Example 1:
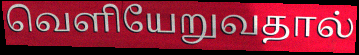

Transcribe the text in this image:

வெளியேறுவதால்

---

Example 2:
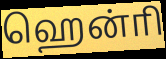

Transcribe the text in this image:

ஹென்ரி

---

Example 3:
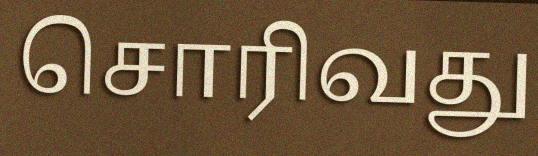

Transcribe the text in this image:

சொரிவது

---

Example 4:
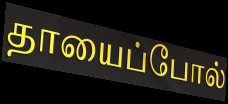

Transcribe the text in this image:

தாயைப்போல்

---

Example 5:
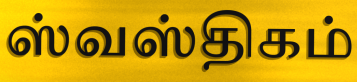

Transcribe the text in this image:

ஸ்வஸ்திகம்